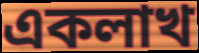
একলাখ